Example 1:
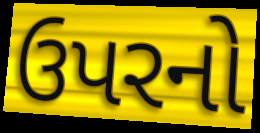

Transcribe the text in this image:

ઉપરનો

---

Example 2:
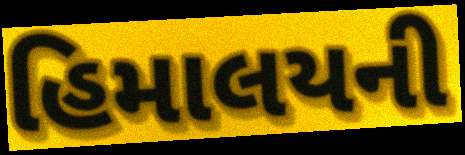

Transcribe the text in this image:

હિમાલયની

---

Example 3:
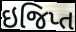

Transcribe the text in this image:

ઇજિપ્ત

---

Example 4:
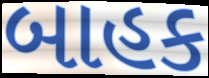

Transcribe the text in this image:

બાહક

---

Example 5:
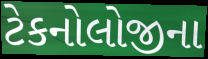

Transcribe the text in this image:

ટેકનોલોજીના